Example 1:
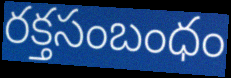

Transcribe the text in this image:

రక్తసంబంధం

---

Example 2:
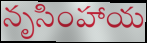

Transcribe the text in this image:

నృసింహాయ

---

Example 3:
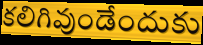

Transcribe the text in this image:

కలిగివుండేందుకు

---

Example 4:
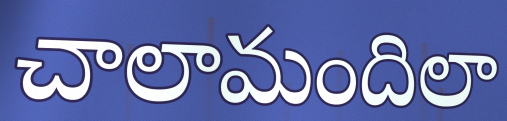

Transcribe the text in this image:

చాలామందిలా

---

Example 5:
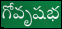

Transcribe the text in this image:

గోవృషభ